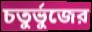
চতুর্ভুজের